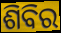
ଶିବିର